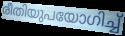
രീതിയുപയോഗിച്ച്